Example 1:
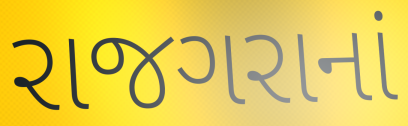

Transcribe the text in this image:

રાજગરાનાં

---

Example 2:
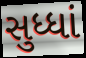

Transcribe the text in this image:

સુધ્ધાં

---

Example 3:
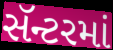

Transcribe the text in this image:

સૅન્ટરમાં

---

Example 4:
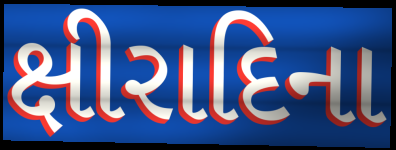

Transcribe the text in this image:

ક્ષીરાદિના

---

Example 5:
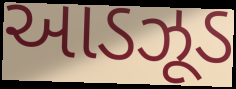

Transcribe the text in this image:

આડઝૂડ